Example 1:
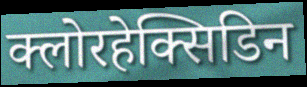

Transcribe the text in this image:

क्लोरहेक्सिडिन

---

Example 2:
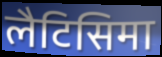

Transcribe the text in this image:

लैटिसिमा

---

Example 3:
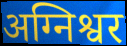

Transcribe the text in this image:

अग्निश्वर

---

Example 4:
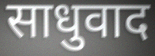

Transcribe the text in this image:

साधुवाद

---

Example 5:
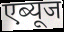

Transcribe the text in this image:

एब्यूज